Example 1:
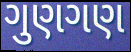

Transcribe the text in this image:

ગુણગણ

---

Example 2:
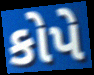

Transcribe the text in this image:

કોપે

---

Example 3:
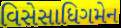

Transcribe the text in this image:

વિસેસાધિગમેન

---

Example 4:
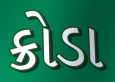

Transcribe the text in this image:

ક્રોડા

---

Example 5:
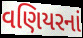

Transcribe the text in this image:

વણિયરનાં